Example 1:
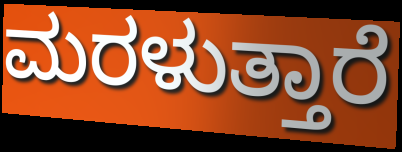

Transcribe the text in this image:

ಮರಳುತ್ತಾರೆ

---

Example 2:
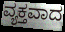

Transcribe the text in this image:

ವ್ಯಕ್ತವಾದ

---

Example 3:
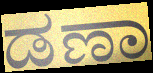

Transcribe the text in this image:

ಡಣಾ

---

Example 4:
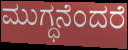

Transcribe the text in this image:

ಮುಗ್ಧನೆಂದರೆ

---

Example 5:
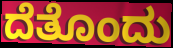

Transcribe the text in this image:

ದೆತೊಂದು